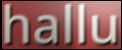
hallu